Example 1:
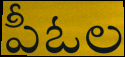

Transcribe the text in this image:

పీఓల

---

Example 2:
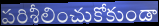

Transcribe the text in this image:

పరిశీలించుకోకుండా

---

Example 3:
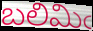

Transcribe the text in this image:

బలిమిఁ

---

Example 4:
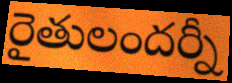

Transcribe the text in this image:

రైతులందర్నీ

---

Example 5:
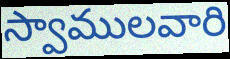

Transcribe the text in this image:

స్వాములవారి